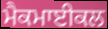
ਮੈਕਮਾਈਕਲ